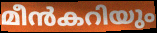
മീൻകറിയും